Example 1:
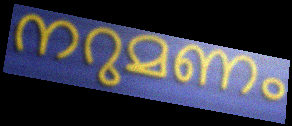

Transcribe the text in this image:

നറുമണം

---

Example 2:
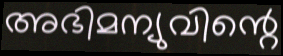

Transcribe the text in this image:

അഭിമന്യുവിന്റെ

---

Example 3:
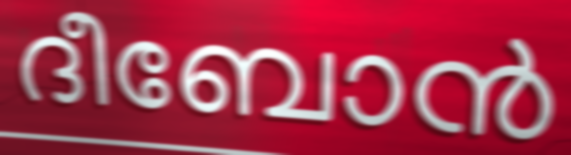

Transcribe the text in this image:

ദീബോൻ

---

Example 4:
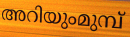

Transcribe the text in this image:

അറിയുംമുമ്പ്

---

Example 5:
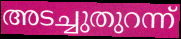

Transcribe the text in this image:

അടച്ചുതുറന്ന്